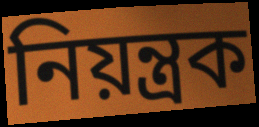
নিয়ন্ত্রক